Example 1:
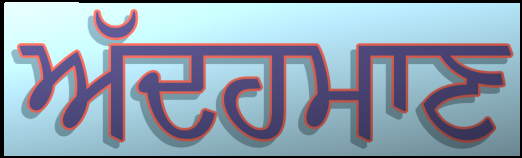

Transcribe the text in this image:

ਅੱਦਹਮਾਣ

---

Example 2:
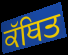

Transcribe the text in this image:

ਕੱਥਿਤ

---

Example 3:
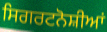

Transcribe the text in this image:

ਸਿਗਰਟਨੋਸ਼ੀਆਂ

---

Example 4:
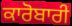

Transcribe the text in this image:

ਕਾਰੋਬਾਰੀ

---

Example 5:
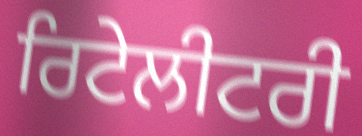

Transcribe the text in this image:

ਰਿਟੇਲੀਟਰੀ